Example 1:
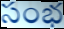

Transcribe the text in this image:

సంభ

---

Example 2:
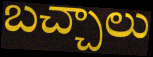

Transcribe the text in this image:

బచ్చాలు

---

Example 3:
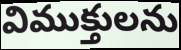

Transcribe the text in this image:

విముక్తులను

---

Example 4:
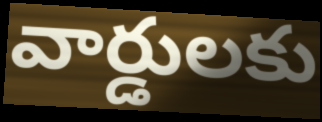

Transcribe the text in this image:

వార్డులకు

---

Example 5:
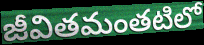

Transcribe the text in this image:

జీవితమంతటిలో